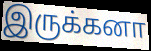
இருக்கனா